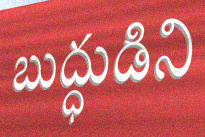
బుద్ధుడిని